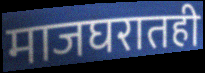
माजघरातही